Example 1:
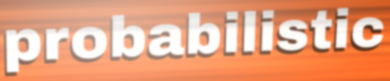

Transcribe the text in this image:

probabilistic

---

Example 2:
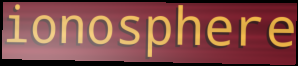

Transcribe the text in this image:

ionosphere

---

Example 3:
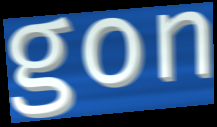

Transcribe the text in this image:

gon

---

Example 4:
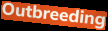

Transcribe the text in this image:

Outbreeding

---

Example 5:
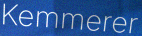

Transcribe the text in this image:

Kemmerer